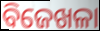
ବିଜେଖଳା